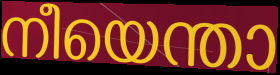
നീയെന്താ